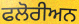
ਫਲੋਰੀਅਨ